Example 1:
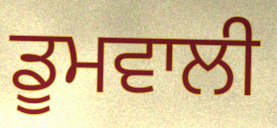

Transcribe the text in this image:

ਡੂਮਵਾਲੀ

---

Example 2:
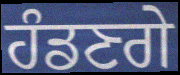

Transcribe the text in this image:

ਹੰਡਣਗੇ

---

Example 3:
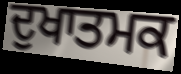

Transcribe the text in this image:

ਦੁਖਾਤਮਕ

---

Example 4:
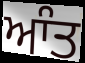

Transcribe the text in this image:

ਆੰਤ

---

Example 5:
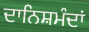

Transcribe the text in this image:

ਦਾਨਿਸ਼ਮੰਦਾਂ